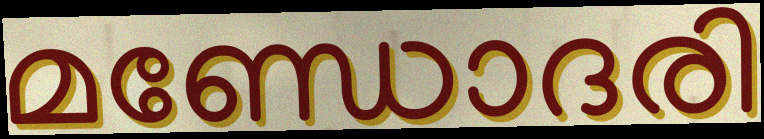
മണ്ഡോദരി